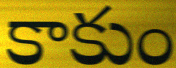
కాకుం